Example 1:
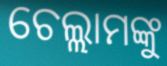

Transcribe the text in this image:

ଚେଲ୍ଲାମଙ୍କୁ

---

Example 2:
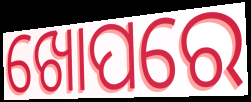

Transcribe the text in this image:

ଖୋପରେ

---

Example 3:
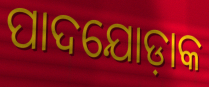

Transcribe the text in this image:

ପାଦଯୋଡ଼ାକ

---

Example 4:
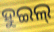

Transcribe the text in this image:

ହୁଇଲ୍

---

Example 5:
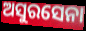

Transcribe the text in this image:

ଅସୁରସେନା